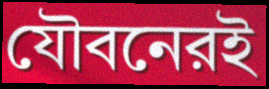
যৌবনেরই